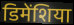
डिमेंशिया